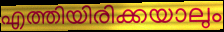
എത്തിയിരിക്കയാലും